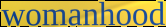
womanhood